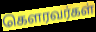
கெளரவர்கள்